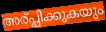
അര്പ്പിക്കുകയും